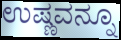
ಉಷ್ಣವನ್ನೂ